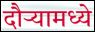
दौऱ्यामध्ये